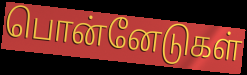
பொன்னேடுகள்